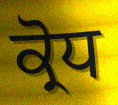
ਕ੍ਰੋਧ